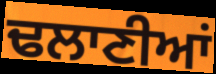
ਢਲਾਣੀਆਂ